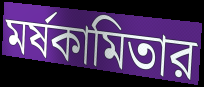
মর্ষকামিতার